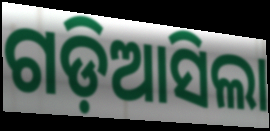
ଗଡ଼ିଆସିଲା